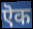
ऎक